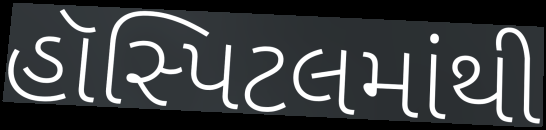
હૉસ્પિટલમાંથી